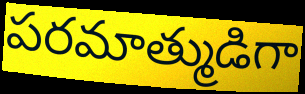
పరమాత్ముడిగా